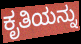
ಕೃತಿಯನ್ನು